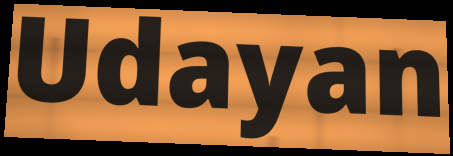
Udayan